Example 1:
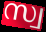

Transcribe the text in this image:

സ്വ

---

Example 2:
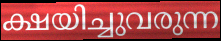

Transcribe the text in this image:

ക്ഷയിച്ചുവരുന്ന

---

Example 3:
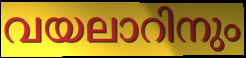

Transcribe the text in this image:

വയലാറിനും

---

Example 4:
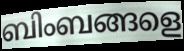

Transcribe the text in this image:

ബിംബങ്ങളെ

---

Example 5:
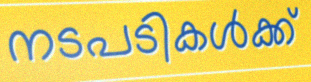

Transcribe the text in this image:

നടപടികൾക്ക്